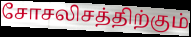
சோசலிசத்திற்கும்